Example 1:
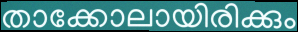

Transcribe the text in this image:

താക്കോലായിരിക്കും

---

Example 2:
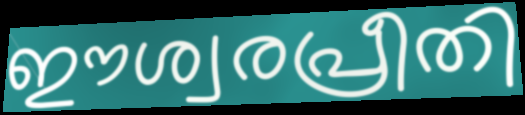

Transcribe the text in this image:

ഈശ്വരപ്രീതി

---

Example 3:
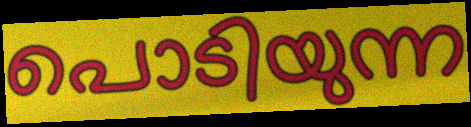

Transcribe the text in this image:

പൊടിയുന്ന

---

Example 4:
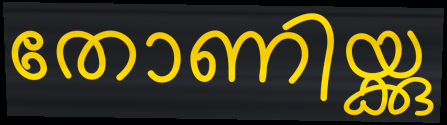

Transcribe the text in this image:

തോണിയ്ക്കു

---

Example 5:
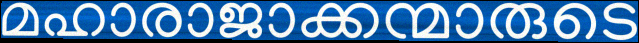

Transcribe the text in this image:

മഹാരാജാക്കന്മാരുടെ